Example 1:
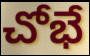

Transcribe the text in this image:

చోభే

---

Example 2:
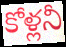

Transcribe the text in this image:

కోళ్లనీ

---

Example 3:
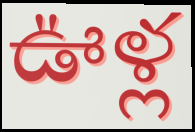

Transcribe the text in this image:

ఊళ్ల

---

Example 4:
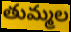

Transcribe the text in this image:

తుమ్మల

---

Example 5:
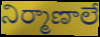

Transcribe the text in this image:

నిర్మాణాలే